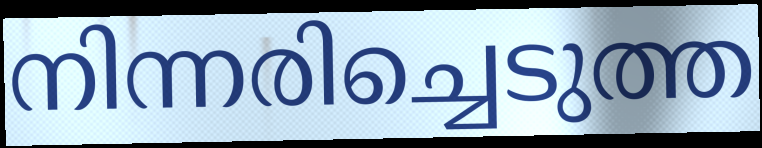
നിന്നരിച്ചെടുത്ത